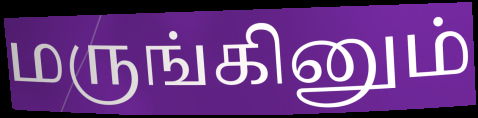
மருங்கினும்